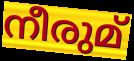
നീരുമ്